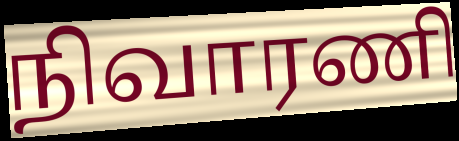
நிவாரணி